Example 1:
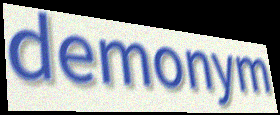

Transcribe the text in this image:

demonym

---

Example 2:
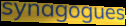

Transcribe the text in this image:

synagogues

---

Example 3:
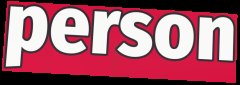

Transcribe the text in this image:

person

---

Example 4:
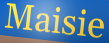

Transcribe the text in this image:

Maisie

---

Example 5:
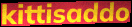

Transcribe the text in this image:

kittisaddo